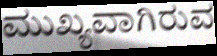
ಮುಖ್ಯವಾಗಿರುವ